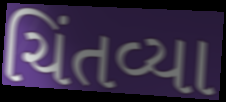
ચિંતવ્યા